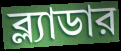
ব্ল্যাডার